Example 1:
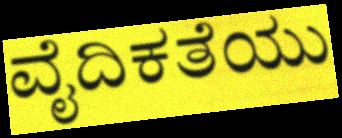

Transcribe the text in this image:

ವೈದಿಕತೆಯು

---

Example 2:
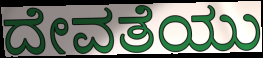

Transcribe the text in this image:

ದೇವತೆಯು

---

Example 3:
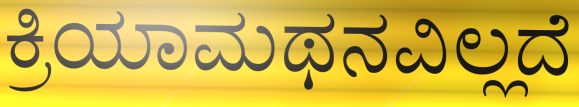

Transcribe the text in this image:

ಕ್ರಿಯಾಮಥನವಿಲ್ಲದೆ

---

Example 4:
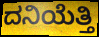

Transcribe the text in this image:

ದನಿಯೆತ್ತಿ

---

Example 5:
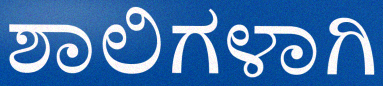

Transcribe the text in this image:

ಶಾಲಿಗಳಾಗಿ